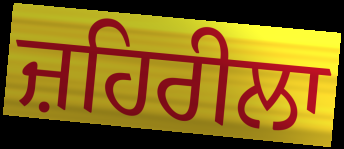
ਜ਼ਹਿਰੀਲਾ